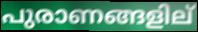
പുരാണങ്ങളില്